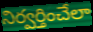
నిర్వర్తించేలా